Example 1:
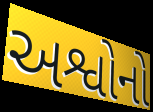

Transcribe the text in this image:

અશ્વોનો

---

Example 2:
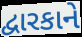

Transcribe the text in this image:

દ્વારકાને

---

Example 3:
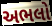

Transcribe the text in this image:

અભલો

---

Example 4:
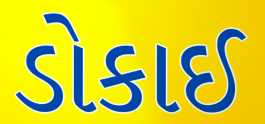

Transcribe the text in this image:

ડોકાઈ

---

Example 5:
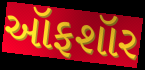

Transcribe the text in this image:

ઑફશૉર